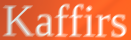
Kaffirs